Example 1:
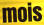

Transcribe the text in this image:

mois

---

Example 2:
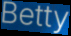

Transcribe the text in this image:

Betty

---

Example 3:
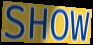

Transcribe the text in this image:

SHOW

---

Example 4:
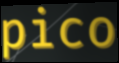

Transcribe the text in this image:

pico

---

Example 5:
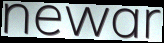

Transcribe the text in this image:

newar